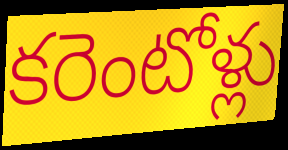
కరెంటోళ్లు